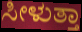
ಸೀಳುತ್ತಾ